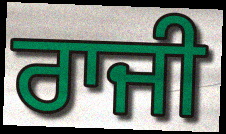
ਰਾਜੀ